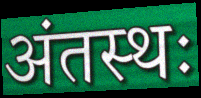
अंतस्थः